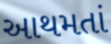
આથમતાં